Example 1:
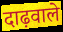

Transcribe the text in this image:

दाढ़वाले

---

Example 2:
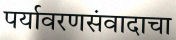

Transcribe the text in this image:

पर्यावरणसंवादाचा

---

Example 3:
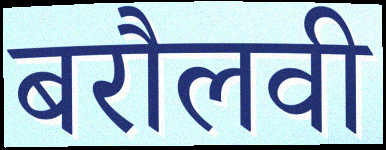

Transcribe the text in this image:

बरौलवी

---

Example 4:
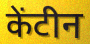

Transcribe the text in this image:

केंटीन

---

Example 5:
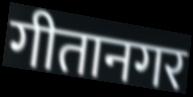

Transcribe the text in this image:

गीतानगर